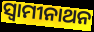
ସ୍ବାମୀନାଥନ